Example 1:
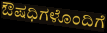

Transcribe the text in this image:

ಔಷಧಿಗಳೊಂದಿಗೆ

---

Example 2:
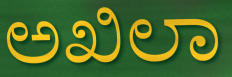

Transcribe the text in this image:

ಅಖಿಲಾ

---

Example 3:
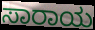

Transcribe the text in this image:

ಸಾರಾಯ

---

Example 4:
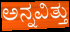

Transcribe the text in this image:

ಅನ್ನವಿತ್ತು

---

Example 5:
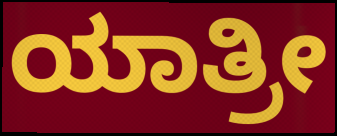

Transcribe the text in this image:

ಯಾತ್ರೀ